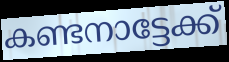
കണ്ടനാട്ടേക്ക്